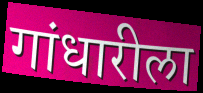
गांधारीला